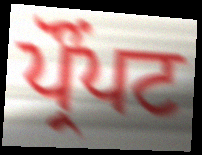
ਪ੍ਰੌੰਪਟ